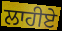
ਲਾਹੀਏ